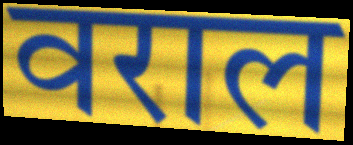
वराल